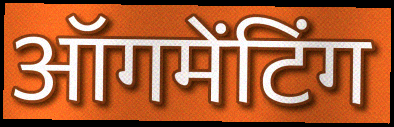
ऑगमेंटिंग